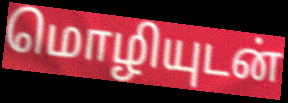
மொழியுடன்